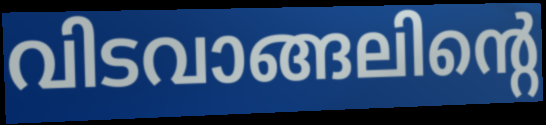
വിടവാങ്ങലിന്റെ